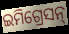
ଇମିଗ୍ରେସନ୍